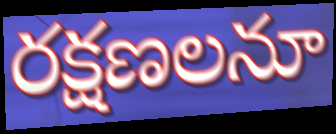
రక్షణలనూ